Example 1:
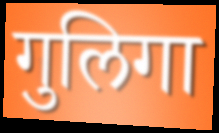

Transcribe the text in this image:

गुलिगा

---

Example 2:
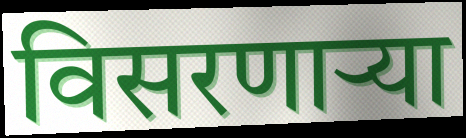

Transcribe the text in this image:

विसरणाऱ्या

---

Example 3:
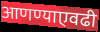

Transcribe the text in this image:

आणण्याएवढी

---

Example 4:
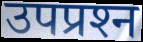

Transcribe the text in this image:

उपप्रश्‍न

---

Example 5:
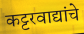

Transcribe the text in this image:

कट्टरवाद्यांचे